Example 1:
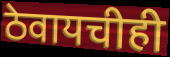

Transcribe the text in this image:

ठेवायचीही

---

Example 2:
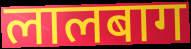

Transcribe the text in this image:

लालबाग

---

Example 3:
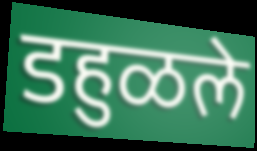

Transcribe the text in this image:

डहुळले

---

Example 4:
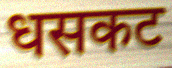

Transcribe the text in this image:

धसकट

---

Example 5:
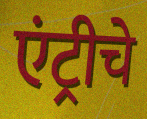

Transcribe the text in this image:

एंट्रीचे